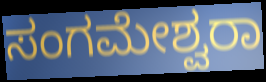
ಸಂಗಮೇಶ್ವರಾ